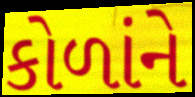
કોળાંને